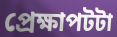
প্রেক্ষাপটটা